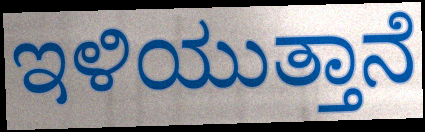
ಇಳಿಯುತ್ತಾನೆ